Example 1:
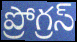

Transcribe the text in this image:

ప్రోగ్రస్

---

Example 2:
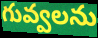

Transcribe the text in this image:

గువ్వలను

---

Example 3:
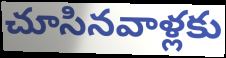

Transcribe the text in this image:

చూసినవాళ్లకు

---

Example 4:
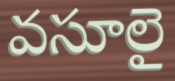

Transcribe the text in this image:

వసూలై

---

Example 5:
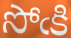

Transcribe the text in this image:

సోఁకి